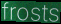
frosts